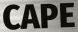
CAPE